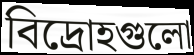
বিদ্রোহগুলো